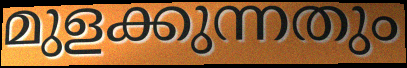
മുളക്കുന്നതും